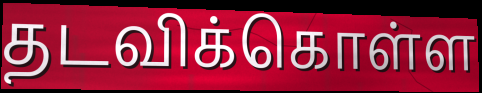
தடவிக்கொள்ள